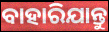
ବାହାରିଯାନ୍ତୁ